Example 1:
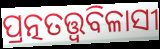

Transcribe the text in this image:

ପ୍ରତ୍ନତତ୍ତ୍ବବିଳାସୀ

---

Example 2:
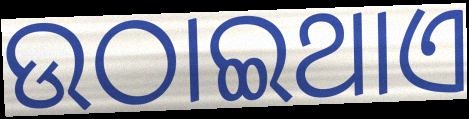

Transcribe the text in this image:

ଉଠାଇଥାଏ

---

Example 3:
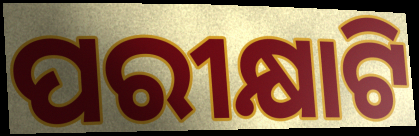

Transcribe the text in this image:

ପରୀକ୍ଷାଟି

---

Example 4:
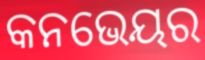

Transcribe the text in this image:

କନଭେୟର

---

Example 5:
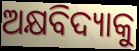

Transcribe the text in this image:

ଅକ୍ଷବିଦ୍ୟାକୁ